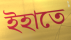
ইহাতে